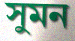
সুমন